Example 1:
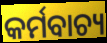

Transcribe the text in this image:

କର୍ମବାଚ୍ୟ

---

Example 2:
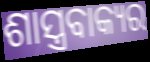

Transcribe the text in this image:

ଶାସ୍ତ୍ରବାକ୍ୟର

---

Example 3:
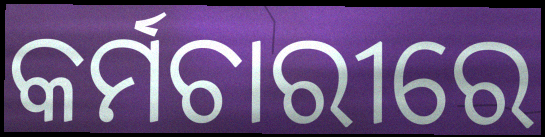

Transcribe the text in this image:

କର୍ମଚାରୀରେ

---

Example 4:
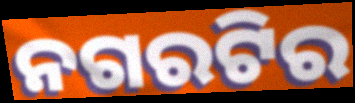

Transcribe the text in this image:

ନଗରଟିର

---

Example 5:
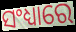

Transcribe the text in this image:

ସଂଧ୍ୟାରେ